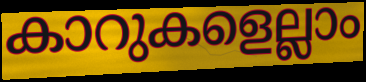
കാറുകളെല്ലാം